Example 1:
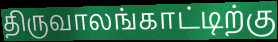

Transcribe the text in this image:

திருவாலங்காட்டிற்கு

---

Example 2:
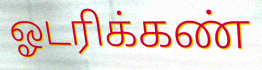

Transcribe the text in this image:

ஓடரிக்கண்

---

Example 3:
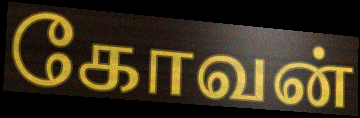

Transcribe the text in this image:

கோவன்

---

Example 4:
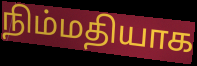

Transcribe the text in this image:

நிம்மதியாக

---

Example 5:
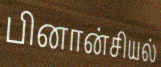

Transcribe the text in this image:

பினான்சியல்